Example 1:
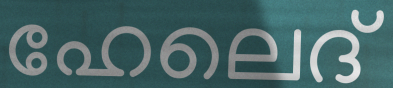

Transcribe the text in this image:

ഹേലെദ്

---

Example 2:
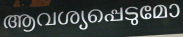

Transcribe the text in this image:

ആവശ്യപ്പെടുമോ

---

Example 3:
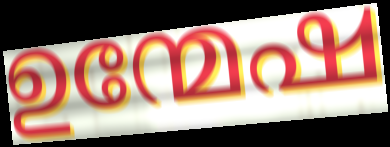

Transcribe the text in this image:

ഉന്മേഷ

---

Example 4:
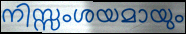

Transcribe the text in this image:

നിസ്സംശയമായും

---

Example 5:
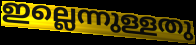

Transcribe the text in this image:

ഇല്ലെന്നുള്ളതു